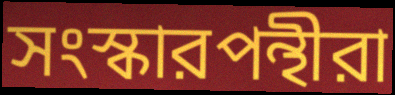
সংস্কারপন্থীরা